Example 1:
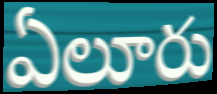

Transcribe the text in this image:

ఏలూరు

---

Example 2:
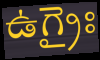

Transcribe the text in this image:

ఉగ్రైః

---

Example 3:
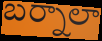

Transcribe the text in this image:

బర్నాలా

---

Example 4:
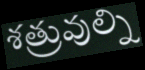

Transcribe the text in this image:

శత్రువుల్ని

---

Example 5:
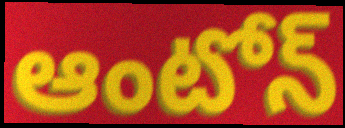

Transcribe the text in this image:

ఆంటోన్